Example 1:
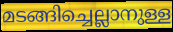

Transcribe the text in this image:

മടങ്ങിച്ചെല്ലാനുള്ള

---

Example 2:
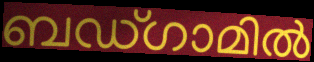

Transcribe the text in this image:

ബഡ്ഗാമിൽ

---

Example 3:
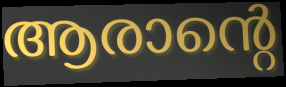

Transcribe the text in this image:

ആരാന്റെ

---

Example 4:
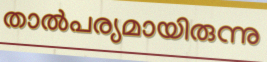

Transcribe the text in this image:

താൽപര്യമായിരുന്നു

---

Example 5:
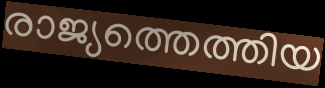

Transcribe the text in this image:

രാജ്യത്തെത്തിയ